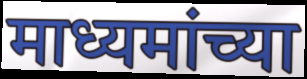
माध्यमांच्या